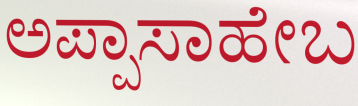
ಅಪ್ಪಾಸಾಹೇಬ